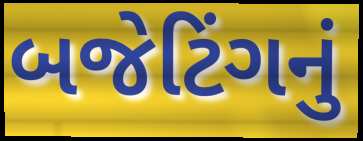
બજેટિંગનું